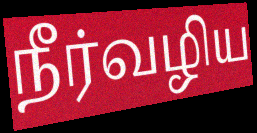
நீர்வழிய